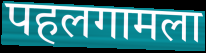
पहलगामला